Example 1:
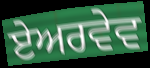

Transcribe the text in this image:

ਏਅਰਵੇਵ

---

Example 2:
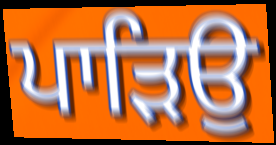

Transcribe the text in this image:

ਪਾੜਿਉ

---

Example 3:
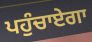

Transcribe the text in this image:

ਪਹੁੰਚਾਏਗਾ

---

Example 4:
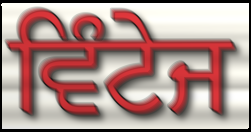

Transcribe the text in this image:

ਵਿੰਟੇਜ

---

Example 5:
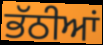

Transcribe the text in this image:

ਭੱਠੀਆਂ